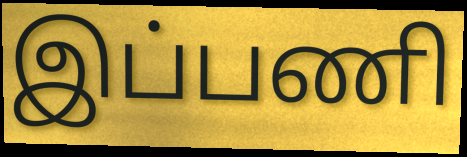
இப்பணி